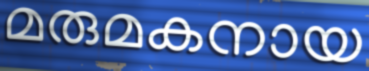
മരുമകനായ